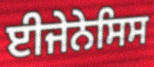
ਈਜੇਨੇਸਿਸ